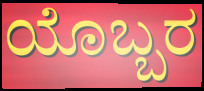
ಯೊಬ್ಬರ